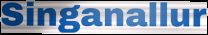
Singanallur